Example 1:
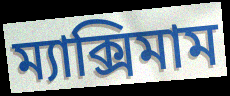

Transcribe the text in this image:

ম্যাক্সিমাম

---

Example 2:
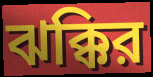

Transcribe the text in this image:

ঝক্কির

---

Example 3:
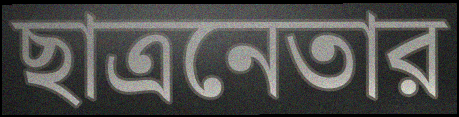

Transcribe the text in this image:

ছাত্রনেতার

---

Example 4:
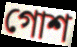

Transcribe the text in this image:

গোশ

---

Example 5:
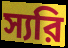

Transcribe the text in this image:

স্যরি